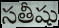
సతీషు